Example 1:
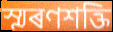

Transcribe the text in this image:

স্মৰণশক্তি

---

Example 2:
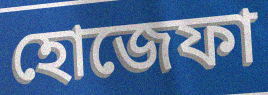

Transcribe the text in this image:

হোজেফা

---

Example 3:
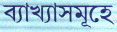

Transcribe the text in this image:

ব্যাখ্যাসমূহে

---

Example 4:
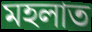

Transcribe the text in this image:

মহলাত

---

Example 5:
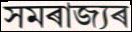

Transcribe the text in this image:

সমৰাজ্যৰ